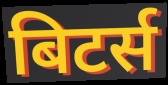
बिटर्स